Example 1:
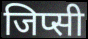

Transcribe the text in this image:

जिप्सी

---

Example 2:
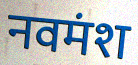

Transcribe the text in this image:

नवमंश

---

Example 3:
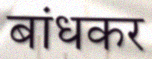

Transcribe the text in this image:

बांधकर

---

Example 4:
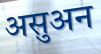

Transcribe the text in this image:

असुअन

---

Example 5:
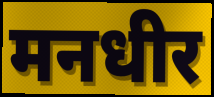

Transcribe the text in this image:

मनधीर